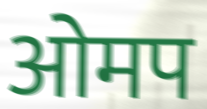
ओमप